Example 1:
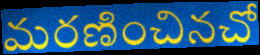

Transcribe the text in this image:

మరణించినచో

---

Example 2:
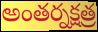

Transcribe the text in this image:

అంతర్నక్షత్ర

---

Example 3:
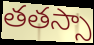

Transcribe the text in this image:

తతస్సా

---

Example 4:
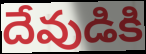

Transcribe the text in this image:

దేవుడికి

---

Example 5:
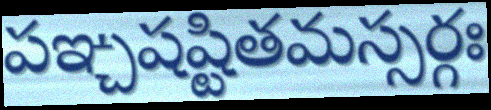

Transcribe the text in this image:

పఞ్చషష్టితమస్సర్గః